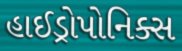
હાઈડ્રોપોનિક્સ